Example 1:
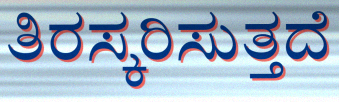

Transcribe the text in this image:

ತಿರಸ್ಕರಿಸುತ್ತದೆ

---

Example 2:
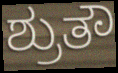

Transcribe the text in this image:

ಶ್ರುತೌ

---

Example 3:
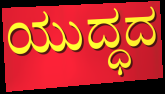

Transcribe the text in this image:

ಯುದ್ಧದ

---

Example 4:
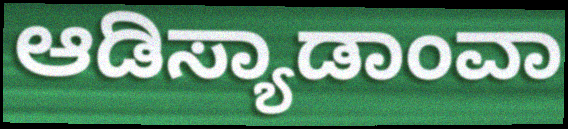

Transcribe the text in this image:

ಆಡಿಸ್ಯಾಡಾಂವಾ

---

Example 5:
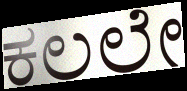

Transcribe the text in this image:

ಕಲಲೇ